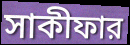
সাকীফার